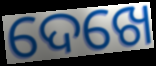
ଦେଖେ